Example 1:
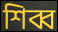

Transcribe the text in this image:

শিব্ব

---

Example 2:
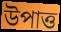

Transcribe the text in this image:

উপাত্ত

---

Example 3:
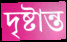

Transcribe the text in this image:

দৃষ্টান্ত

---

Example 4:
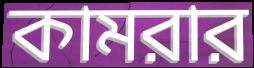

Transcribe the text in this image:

কামরার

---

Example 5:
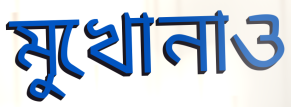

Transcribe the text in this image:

মুখোনাও